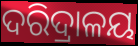
ଦରିଦ୍ରାଳୟ